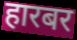
हारबर